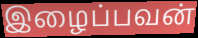
இழைப்பவன்